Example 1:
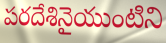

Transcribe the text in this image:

పరదేశినైయుంటిని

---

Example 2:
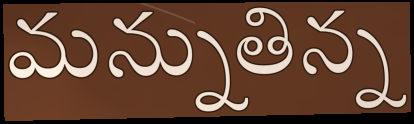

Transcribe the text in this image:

మన్నుతిన్న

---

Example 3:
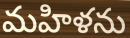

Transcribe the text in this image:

మహిళను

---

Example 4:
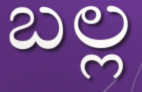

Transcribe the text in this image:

బల్ల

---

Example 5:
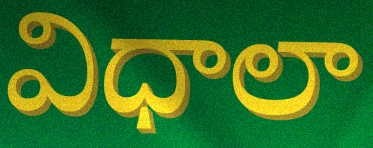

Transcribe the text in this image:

విధాలా